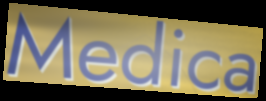
Medica